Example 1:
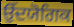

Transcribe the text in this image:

ਉੱਦਯੋਗਿਕ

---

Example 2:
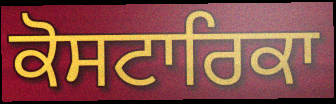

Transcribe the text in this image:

ਕੋਸਟਾਰਿਕਾ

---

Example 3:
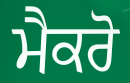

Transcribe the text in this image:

ਮੈਕਰੋ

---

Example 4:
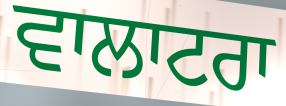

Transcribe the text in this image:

ਵਾਲਾਟਰਾ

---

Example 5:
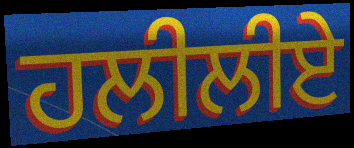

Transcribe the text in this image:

ਹਲੀਲੀਏ